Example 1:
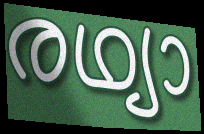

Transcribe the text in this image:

രഥ്യാ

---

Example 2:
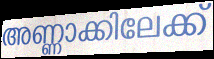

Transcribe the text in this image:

അണ്ണാക്കിലേക്ക്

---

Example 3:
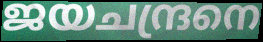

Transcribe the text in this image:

ജയചന്ദ്രനെ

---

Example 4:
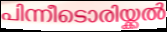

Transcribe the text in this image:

പിന്നീടൊരിയ്ക്കൽ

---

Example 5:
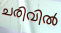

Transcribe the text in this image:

ചരിവിൽ